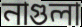
নাগুলা